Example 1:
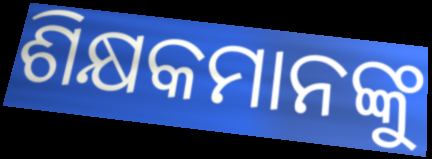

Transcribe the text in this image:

ଶିକ୍ଷକମାନଙ୍କୁ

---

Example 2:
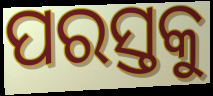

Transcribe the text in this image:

ପରସ୍ତକୁ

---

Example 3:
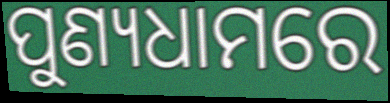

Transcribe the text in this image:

ପୁଣ୍ୟଧାମରେ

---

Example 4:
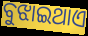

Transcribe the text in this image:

ବୁଝାଇଥାଏ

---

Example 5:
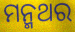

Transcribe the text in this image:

ମନ୍ମଥର